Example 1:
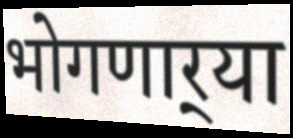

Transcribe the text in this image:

भोगणार्या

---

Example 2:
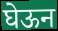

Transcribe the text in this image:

घेऊन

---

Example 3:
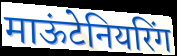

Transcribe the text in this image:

माऊंटेनियरिंग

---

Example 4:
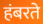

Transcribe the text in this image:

हंबरते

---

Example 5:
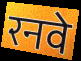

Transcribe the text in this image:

रनवे